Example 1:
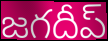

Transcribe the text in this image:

జగదీప్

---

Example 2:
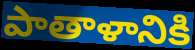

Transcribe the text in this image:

పాతాళానికి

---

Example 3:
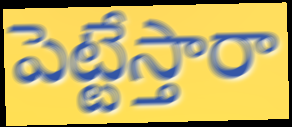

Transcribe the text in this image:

పెట్టేస్తారా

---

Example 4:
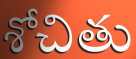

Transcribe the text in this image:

శోచితు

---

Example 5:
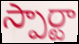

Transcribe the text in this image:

స్పార్టా